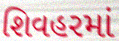
શિવહરમાં